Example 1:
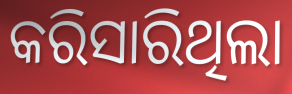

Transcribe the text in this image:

କରିସାରିଥିଲା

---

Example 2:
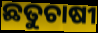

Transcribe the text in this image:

ଛତୁଚାଷୀ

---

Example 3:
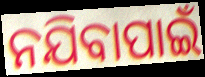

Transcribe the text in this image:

ନଯିବାପାଇଁ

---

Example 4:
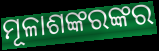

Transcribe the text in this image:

ମୂଳାଶଙ୍କରଙ୍କର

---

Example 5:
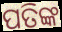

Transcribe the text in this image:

ପତିଙ୍କ